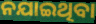
ନଯାଇଥିବା